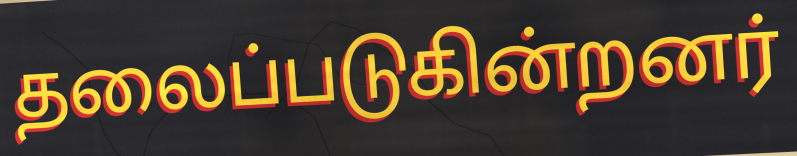
தலைப்படுகின்றனர்